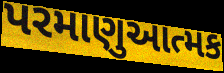
પરમાણુઆત્મક